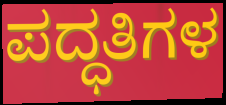
ಪದ್ಧತಿಗಳ